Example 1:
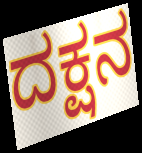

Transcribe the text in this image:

ದಕ್ಷನ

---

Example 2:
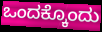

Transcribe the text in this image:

ಒಂದಕ್ಕೊಂದು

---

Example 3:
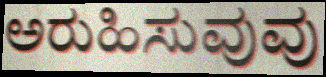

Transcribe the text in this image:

ಅರುಹಿಸುವುವು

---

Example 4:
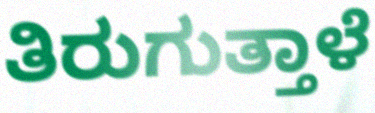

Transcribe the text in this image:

ತಿರುಗುತ್ತಾಳೆ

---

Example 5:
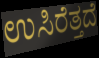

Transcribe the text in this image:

ಉಸಿರೆತ್ತದೆ